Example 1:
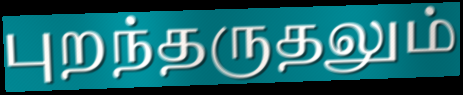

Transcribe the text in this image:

புறந்தருதலும்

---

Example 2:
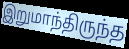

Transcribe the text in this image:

இறுமாந்திருந்த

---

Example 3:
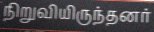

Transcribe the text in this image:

நிறுவியிருந்தனர்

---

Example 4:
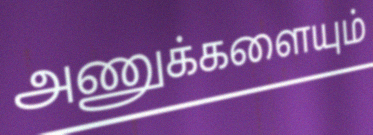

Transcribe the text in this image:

அணுக்களையும்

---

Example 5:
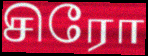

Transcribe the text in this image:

சிரோ